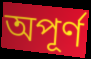
অপূর্ণ